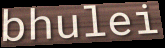
bhulei